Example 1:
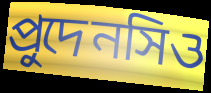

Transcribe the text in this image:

প্রুদেনসিও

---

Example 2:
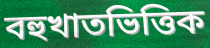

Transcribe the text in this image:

বহুখাতভিত্তিক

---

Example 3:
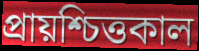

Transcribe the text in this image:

প্রায়শ্চিত্তকাল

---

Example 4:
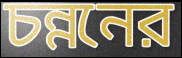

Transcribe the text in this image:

চন্ননের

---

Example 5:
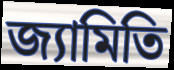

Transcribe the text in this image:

জ্যামিতি